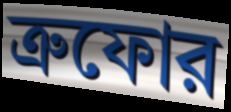
ত্রুফোর